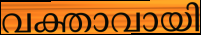
വക്താവായി